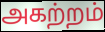
அகற்றம்